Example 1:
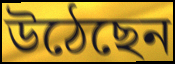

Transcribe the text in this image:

উঠেছেন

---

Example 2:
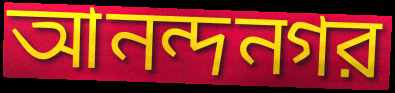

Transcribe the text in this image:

আনন্দনগর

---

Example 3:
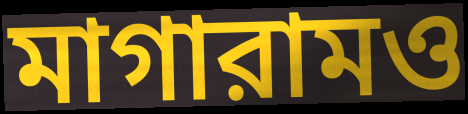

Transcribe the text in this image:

মাগারামও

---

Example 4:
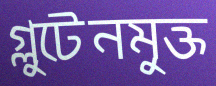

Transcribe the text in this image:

গ্লুটেনমুক্ত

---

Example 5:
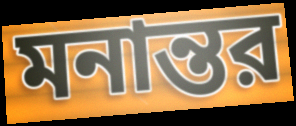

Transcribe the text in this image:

মনান্তর